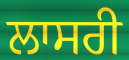
ਲਾਸਰੀ